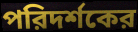
পরিদর্শকের